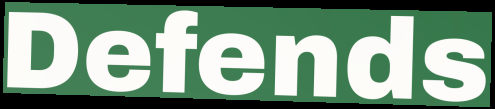
Defends